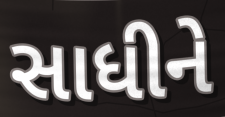
સાધીને